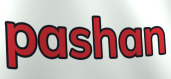
pashan